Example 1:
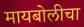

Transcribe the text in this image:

मायबोलीचा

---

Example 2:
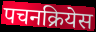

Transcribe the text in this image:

पचनक्रियेस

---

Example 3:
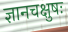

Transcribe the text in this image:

ज्ञानचक्षुषः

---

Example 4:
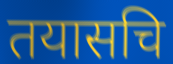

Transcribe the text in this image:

तयासचि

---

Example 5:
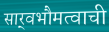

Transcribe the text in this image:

सार्वभौमत्वाची